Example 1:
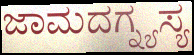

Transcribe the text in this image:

ಜಾಮದಗ್ನ್ಯಸ್ಯ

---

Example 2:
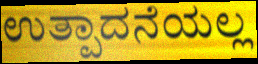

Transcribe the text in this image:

ಉತ್ಪಾದನೆಯಲ್ಲ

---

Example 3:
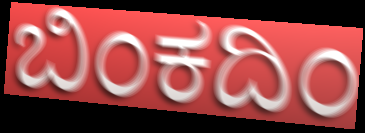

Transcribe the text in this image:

ಬಿಂಕದಿಂ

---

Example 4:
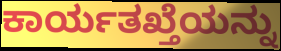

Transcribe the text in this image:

ಕಾರ್ಯತಖ್ತೆಯನ್ನು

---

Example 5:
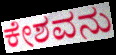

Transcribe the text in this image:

ಕೇಶವನು